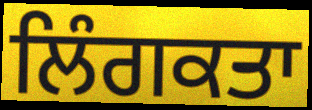
ਲਿੰਗਕਤਾ